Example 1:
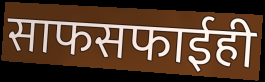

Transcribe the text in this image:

साफसफाईही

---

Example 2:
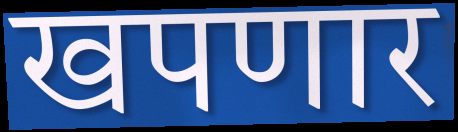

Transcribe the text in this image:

खपणार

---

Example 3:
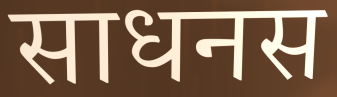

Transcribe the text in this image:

साधनस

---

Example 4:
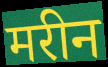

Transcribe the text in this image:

मरीन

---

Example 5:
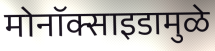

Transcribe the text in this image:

मोनॉक्साइडामुळे